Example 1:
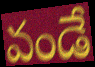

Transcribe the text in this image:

వండే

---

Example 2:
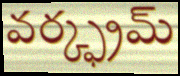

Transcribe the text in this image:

వర్క్ఫ్రమ్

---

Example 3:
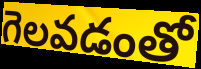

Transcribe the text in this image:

గెలవడంతో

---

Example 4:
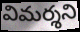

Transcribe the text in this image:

విమర్శని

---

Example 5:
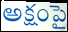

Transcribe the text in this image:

అక్షంపై